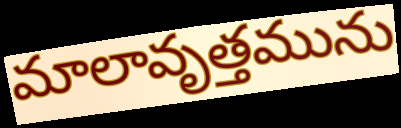
మాలావృత్తమును